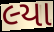
લ્યા